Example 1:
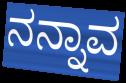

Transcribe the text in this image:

ನನ್ನಾವ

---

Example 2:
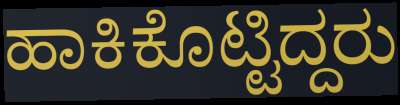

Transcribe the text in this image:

ಹಾಕಿಕೊಟ್ಟಿದ್ದರು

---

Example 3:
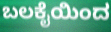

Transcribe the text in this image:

ಬಲಕೈಯಿಂದ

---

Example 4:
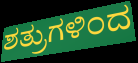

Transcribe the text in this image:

ಶತ್ರುಗಳಿಂದ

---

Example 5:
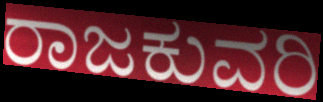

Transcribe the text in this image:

ರಾಜಕುವರಿ